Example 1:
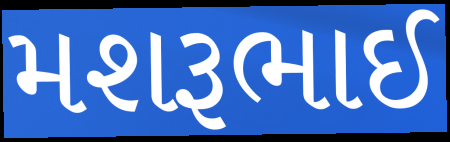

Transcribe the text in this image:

મશરૂભાઈ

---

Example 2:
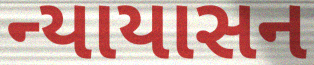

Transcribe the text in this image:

ન્યાયાસન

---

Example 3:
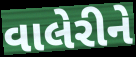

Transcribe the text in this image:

વાલેરીને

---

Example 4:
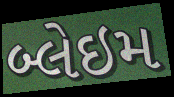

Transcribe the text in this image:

બ્લેઇમ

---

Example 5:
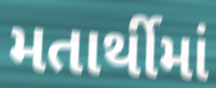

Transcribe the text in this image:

મતાર્થીમાં